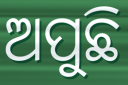
ଅପୁଛି